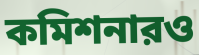
কমিশনারও